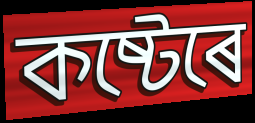
কষ্টেৰে